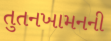
તુતનખામનની